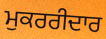
ਮੁਕਰਰੀਦਾਰ